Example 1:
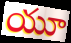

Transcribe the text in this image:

యూ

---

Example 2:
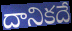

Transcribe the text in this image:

దానికదే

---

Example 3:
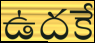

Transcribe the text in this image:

ఉదకే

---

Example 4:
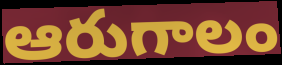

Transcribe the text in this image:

ఆరుగాలం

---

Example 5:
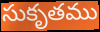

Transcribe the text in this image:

సుకృతము